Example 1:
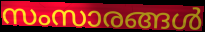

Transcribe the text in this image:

സംസാരങ്ങൾ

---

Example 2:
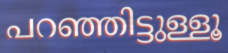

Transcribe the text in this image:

പറഞ്ഞിട്ടുള്ളൂ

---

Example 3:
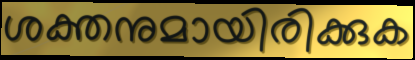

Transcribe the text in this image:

ശക്തനുമായിരിക്കുക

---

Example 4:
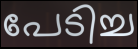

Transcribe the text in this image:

പേടിച്ച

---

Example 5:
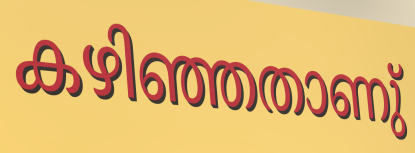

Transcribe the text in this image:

കഴിഞ്ഞതാണു്